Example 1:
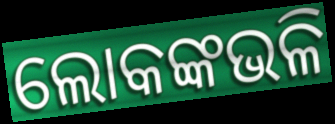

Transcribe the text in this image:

ଲୋକଙ୍କଭଳି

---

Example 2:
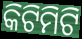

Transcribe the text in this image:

କିଟିମିଟି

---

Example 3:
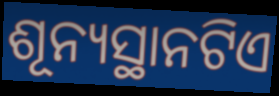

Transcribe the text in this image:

ଶୂନ୍ୟସ୍ଥାନଟିଏ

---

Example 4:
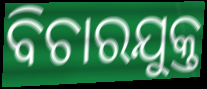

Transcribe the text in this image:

ବିଚାରଯୁକ୍ତ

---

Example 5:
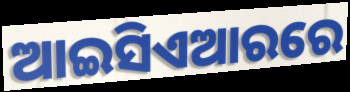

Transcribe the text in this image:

ଆଇସିଏଆରରେ